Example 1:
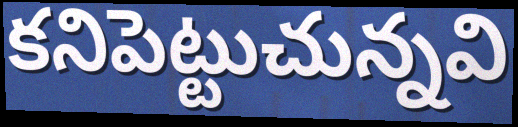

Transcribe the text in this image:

కనిపెట్టుచున్నవి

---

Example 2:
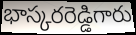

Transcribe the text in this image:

భాస్కరరెడ్డిగారు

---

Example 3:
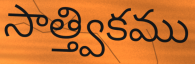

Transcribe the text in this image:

సాత్త్వికము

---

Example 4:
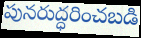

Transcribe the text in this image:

పునరుద్ధరించబడి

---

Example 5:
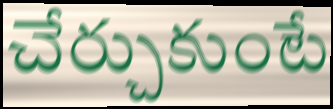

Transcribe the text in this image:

చేర్చుకుంటే